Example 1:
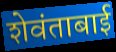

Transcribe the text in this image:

शेवंताबाई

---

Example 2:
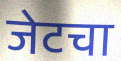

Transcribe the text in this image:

जेटचा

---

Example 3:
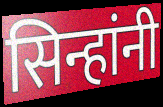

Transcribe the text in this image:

सिन्हांनी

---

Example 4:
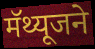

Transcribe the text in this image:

मॅथ्यूजने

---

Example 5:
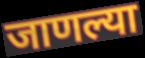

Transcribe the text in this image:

जाणल्या